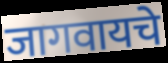
जागवायचे